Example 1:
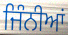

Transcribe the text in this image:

ਜਿੰਨੀਆਂ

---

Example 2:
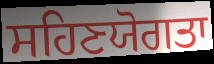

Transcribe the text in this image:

ਸਹਿਣਯੋਗਤਾ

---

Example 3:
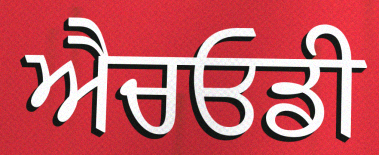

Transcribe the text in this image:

ਐਚਓਡੀ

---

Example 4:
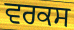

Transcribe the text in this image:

ਵਰਕਸ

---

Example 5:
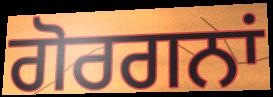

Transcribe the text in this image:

ਗੋਰਗਨਾਂ